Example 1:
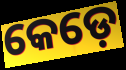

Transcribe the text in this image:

କେଡ଼େ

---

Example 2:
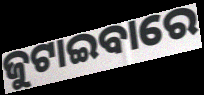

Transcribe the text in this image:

ଜୁଟାଇବାରେ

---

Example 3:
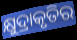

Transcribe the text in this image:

କ୍ଷୁଦ୍ରାକୃତିର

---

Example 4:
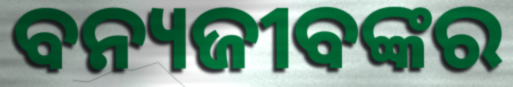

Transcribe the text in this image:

ବନ୍ୟଜୀବଙ୍କର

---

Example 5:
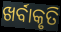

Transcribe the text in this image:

ଖର୍ବାକୃତି